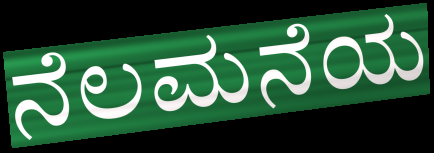
ನೆಲಮನೆಯ